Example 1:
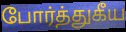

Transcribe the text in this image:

போர்த்துகீய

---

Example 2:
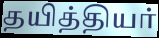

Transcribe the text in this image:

தயித்தியர்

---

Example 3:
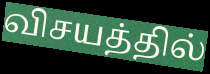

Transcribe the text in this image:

விசயத்தில்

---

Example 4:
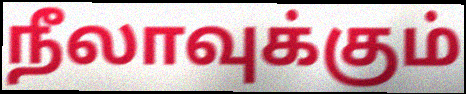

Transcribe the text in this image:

நீலாவுக்கும்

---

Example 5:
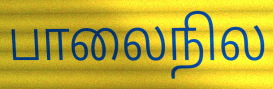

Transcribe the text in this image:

பாலைநில